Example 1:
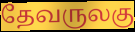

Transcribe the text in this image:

தேவருலகு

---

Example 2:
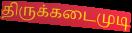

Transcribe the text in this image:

திருக்கடைமுடி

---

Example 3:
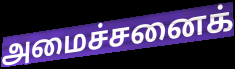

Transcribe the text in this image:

அமைச்சனைக்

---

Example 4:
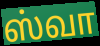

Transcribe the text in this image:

ஸ்வா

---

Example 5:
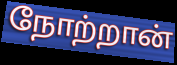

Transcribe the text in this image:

நோற்றான்